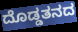
ದೊಡ್ಡತನದ